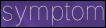
symptom